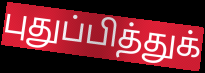
புதுப்பித்துக்